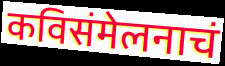
कविसंमेलनाचं